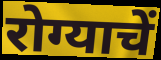
रोग्याचें